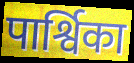
पार्श्विका